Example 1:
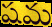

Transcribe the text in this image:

షమ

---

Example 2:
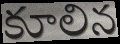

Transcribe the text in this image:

కూలిన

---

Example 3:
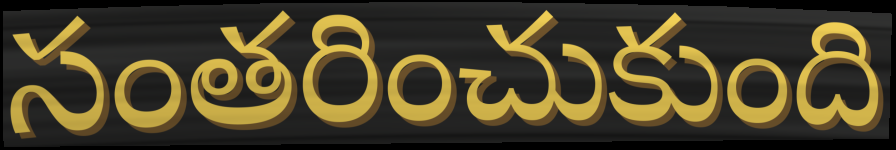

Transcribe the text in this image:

సంతరించుకుంది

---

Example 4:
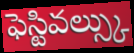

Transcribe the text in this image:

ఫెస్టివల్స్కు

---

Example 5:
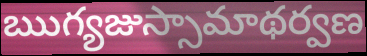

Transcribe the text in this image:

ఋగ్యజుస్సామాథర్వణ